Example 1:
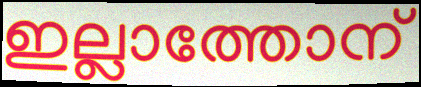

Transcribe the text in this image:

ഇല്ലാത്തോന്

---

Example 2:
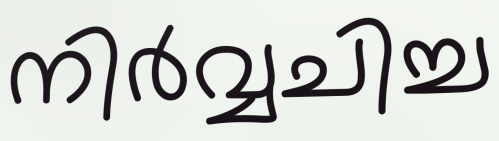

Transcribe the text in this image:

നിർവ്വചിച്ച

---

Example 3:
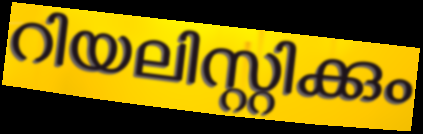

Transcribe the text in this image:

റിയലിസ്റ്റിക്കും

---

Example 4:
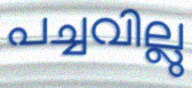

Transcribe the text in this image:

പച്ചവില്ലു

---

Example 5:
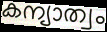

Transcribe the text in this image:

കന്യാത്വം